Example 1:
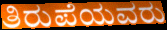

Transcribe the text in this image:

ತಿರುಪೆಯವರು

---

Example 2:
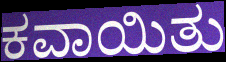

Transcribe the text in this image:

ಕವಾಯಿತು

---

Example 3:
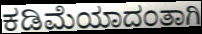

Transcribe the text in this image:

ಕಡಿಮೆಯಾದಂತಾಗಿ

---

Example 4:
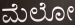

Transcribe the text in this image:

ಮೆಲೋ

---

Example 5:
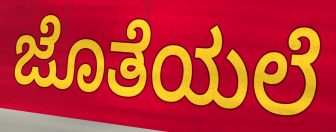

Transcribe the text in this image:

ಜೊತೆಯಲೆ